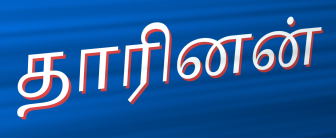
தாரினன்